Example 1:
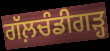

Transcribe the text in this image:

ਗੱਲ਼ਚੰਡੀਗੜ੍ਹ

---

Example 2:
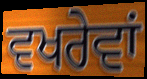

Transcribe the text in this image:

ਵਖਰੇਵਾਂ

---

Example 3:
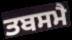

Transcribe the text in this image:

ਤਬਸਮੈ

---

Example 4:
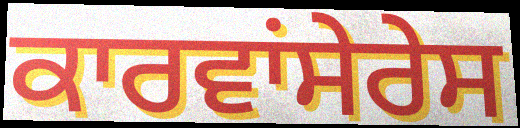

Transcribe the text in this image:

ਕਾਰਵਾਂਸੇਰੇਸ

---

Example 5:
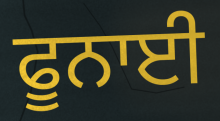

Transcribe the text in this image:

ਫੂਨਾਈ